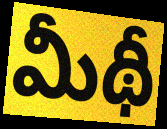
మీథీ